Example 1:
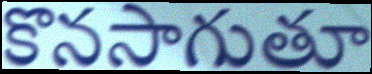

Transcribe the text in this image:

కొనసాగుతూ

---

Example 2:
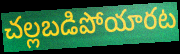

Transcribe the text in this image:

చల్లబడిపోయారట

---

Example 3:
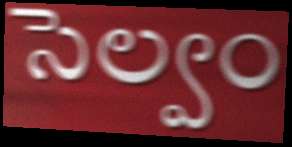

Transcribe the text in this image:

సెల్వం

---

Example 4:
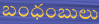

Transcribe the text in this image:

బంధంబులు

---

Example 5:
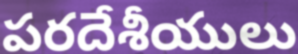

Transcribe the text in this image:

పరదేశీయులు